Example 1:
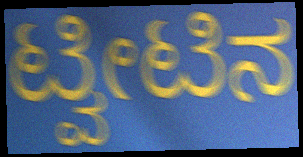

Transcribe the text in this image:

ಟ್ವೀಟಿನ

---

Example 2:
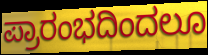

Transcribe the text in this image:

ಪ್ರಾರಂಭದಿಂದಲೂ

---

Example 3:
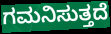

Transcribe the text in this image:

ಗಮನಿಸುತ್ತದೆ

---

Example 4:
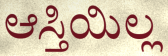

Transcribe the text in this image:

ಆಸ್ತಿಯಿಲ್ಲ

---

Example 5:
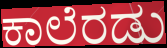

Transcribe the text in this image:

ಕಾಲೆರಡು